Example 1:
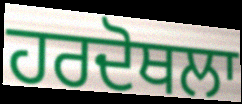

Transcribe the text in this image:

ਹਰਦੋਥਲਾ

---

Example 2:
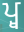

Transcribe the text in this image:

ਪ੍ਥ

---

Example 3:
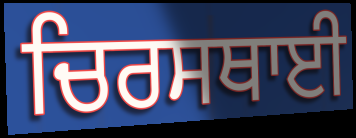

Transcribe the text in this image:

ਚਿਰਸਥਾਈ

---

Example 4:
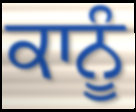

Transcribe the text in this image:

ਕਾਨੂੰ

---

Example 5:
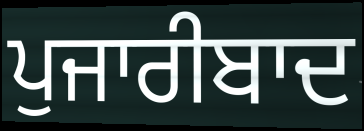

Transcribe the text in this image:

ਪੁਜਾਰੀਬਾਦ